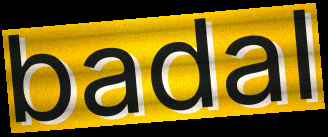
badal